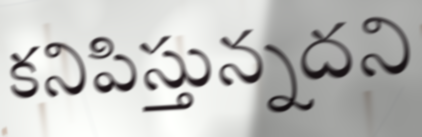
కనిపిస్తున్నదని